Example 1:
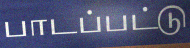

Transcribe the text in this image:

பாடப்பட்டு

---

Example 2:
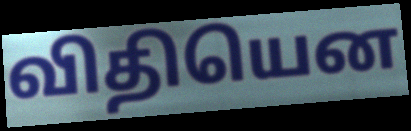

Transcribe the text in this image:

விதியென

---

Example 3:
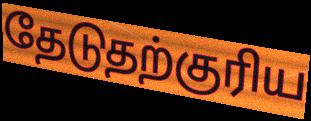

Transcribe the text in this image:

தேடுதற்குரிய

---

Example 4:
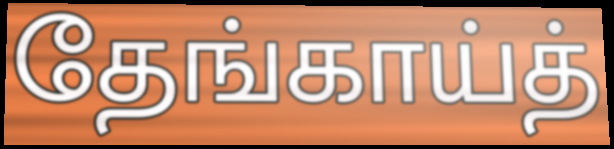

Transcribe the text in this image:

தேங்காய்த்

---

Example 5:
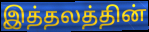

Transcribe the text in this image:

இத்தலத்தின்